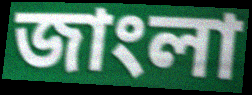
জাংলা